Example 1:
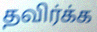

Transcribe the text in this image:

தவிர்க்க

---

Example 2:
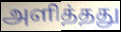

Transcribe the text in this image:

அளித்தது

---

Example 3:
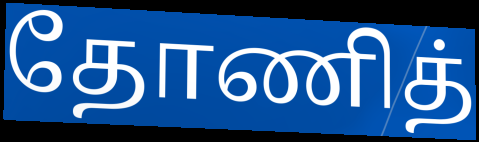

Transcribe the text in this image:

தோணித்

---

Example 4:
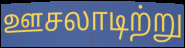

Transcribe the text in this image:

ஊசலாடிற்று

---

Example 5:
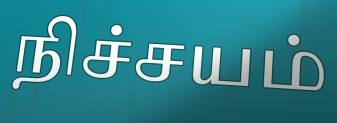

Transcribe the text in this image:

நிச்சயம்